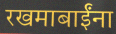
रखमाबाईंना